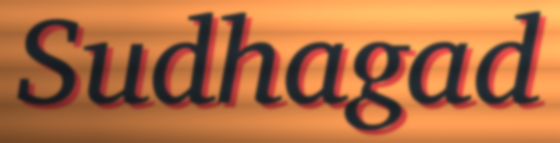
Sudhagad